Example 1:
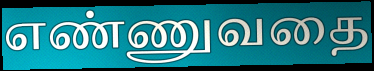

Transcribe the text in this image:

எண்ணுவதை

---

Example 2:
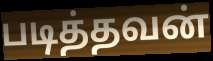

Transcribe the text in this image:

படித்தவன்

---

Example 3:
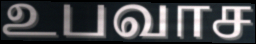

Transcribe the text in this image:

உபவாச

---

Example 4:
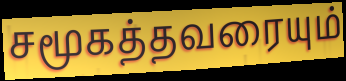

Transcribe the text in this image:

சமூகத்தவரையும்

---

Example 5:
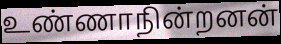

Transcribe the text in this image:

உண்ணாநின்றனன்